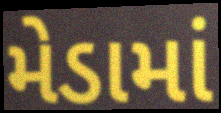
મેડામાં